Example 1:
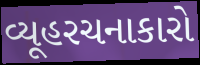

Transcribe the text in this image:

વ્યૂહરચનાકારો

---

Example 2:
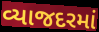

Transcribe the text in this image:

વ્યાજદરમાં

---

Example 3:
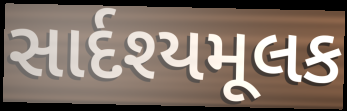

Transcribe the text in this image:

સાર્દશ્યમૂલક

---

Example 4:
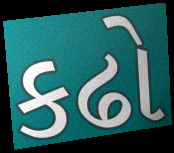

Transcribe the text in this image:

કઢો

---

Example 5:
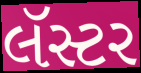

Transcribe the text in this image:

લૅસ્ટર